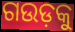
ଗଉଡ଼କୁ